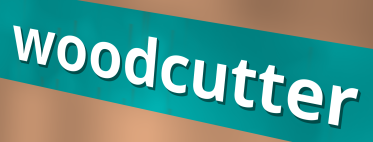
woodcutter